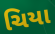
ચિયા